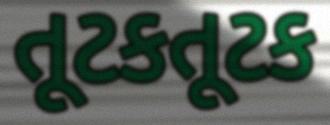
તૂટકતૂટક